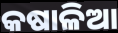
କଷାଳିଆ